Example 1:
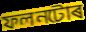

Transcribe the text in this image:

ফলনটোৰ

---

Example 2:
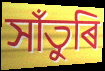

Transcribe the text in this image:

সাঁতুৰি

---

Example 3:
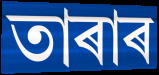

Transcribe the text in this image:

তাৰাৰ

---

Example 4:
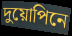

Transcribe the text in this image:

দুয়োপিনে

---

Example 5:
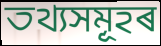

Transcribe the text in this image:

তথ্যসমূহৰ